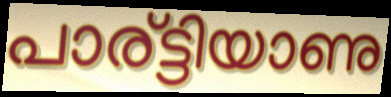
പാര്ട്ടിയാണു